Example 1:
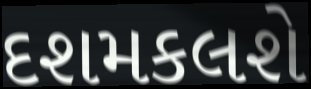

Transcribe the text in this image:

દશમકલશે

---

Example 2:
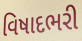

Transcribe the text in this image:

વિષાદભરી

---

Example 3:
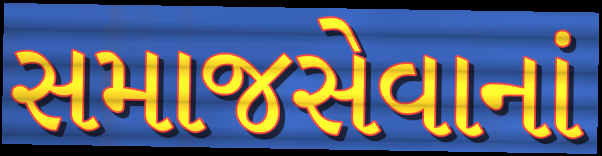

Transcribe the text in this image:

સમાજસેવાનાં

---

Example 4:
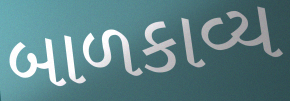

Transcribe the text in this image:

બાળકાવ્ય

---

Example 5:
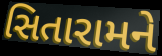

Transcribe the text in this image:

સિતારામને